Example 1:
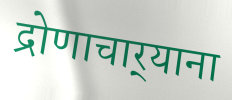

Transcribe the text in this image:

द्रोणाचार्याना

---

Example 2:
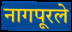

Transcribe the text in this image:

नागपूरले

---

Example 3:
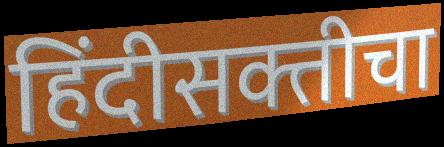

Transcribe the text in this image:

हिंदीसक्तीचा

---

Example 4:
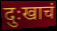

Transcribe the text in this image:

दुःखाचं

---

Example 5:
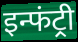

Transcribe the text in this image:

इन्फंट्री